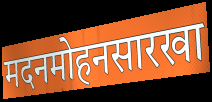
मदनमोहनसारखा